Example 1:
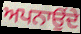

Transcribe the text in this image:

ਅਪਨਾਉਂਦੇ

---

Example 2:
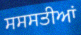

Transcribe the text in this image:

ਸਸਸਤੀਆਂ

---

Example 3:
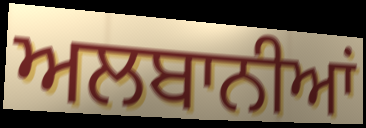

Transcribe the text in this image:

ਅਲਬਾਨੀਆਂ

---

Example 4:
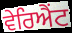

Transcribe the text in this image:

ਵੇਰਿਐਂਟ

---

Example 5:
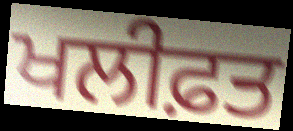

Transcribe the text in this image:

ਖਲੀਫ਼ਤ